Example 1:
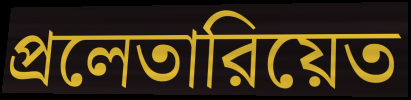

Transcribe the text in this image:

প্রলেতারিয়েত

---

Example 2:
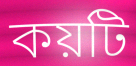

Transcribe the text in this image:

কয়টি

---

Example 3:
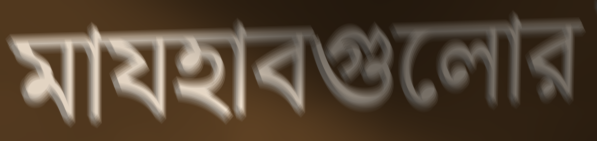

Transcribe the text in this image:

মাযহাবগুলোর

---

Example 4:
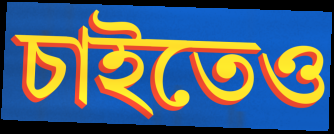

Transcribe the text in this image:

চাইতেও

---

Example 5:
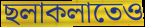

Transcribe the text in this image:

ছলাকলাতেও